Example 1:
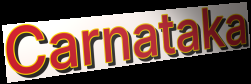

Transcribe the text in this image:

Carnataka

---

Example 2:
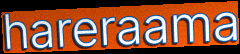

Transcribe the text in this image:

hareraama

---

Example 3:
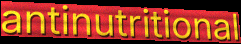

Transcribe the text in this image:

antinutritional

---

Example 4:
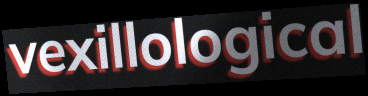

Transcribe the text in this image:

vexillological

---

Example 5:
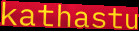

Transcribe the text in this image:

kathastu